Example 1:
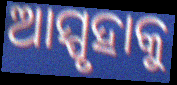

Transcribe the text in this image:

ଆସ୍ପୃହାକୁ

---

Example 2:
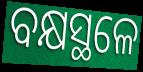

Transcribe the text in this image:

ବକ୍ଷସ୍ଥଳେ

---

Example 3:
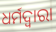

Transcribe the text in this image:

ଧର୍ମଦ୍ଵାରା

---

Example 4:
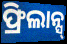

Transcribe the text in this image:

ଫ୍ରିଲାନ୍ସ୍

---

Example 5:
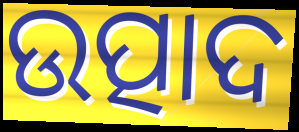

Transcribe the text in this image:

ଉତ୍ପାଦ